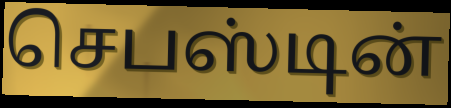
செபஸ்டின்